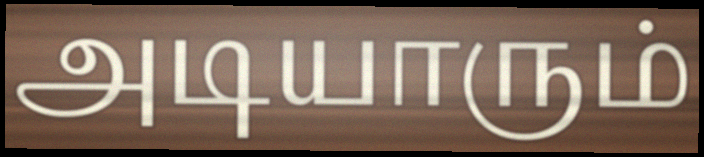
அடியாரும்